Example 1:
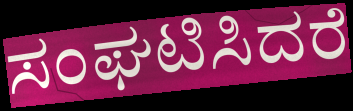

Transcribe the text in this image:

ಸಂಘಟಿಸಿದರೆ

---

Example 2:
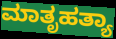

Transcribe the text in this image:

ಮಾತೃಹತ್ಯಾ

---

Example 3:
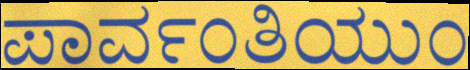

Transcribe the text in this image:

ಪಾರ್ವಂತಿಯುಂ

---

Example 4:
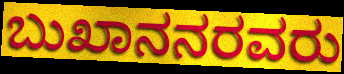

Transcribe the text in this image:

ಬುಖಾನನರವರು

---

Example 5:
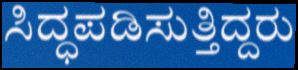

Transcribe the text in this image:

ಸಿದ್ಧಪಡಿಸುತ್ತಿದ್ದರು